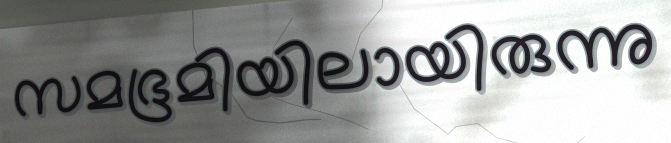
സമഭൂമിയിലായിരുന്നു